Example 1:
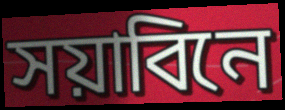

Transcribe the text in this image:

সয়াবিনে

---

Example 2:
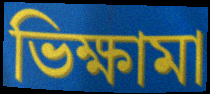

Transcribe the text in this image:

ভিক্ষামা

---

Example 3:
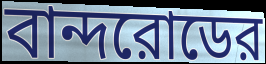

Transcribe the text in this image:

বান্দরোডের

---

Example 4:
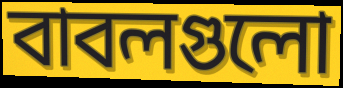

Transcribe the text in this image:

বাবলগুলো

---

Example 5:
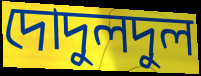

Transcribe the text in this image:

দোদুলদুল